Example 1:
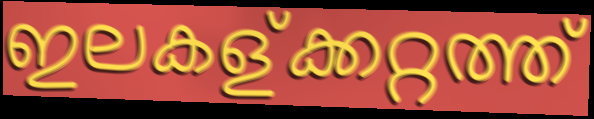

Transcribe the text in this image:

ഇലകള്ക്കറ്റത്ത്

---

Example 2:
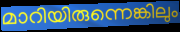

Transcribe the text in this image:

മാറിയിരുന്നെങ്കിലും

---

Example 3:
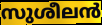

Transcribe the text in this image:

സുശീലൻ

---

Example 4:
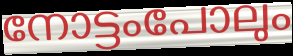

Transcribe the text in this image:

നോട്ടംപോലും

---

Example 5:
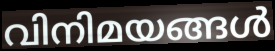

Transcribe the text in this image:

വിനിമയങ്ങൾ